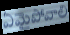
ఏమైపోవాలి